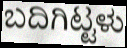
ಬದಿಗಿಟ್ಟಳು